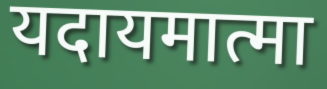
यदायमात्मा